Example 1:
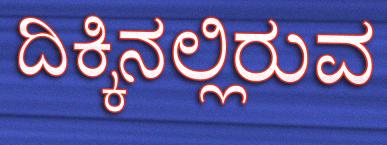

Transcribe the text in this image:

ದಿಕ್ಕಿನಲ್ಲಿರುವ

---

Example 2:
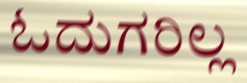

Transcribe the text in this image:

ಓದುಗರಿಲ್ಲ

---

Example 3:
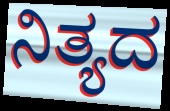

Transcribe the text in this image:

ನಿತ್ಯದ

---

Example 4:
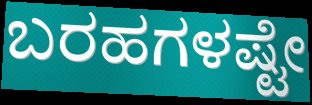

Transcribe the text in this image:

ಬರಹಗಳಷ್ಟೇ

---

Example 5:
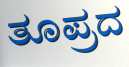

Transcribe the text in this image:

ತೂಪ್ರದ